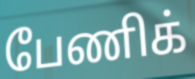
பேணிக்